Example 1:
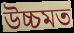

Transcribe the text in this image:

উচ্চমত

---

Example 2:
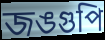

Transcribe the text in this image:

জঙগুপি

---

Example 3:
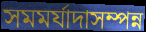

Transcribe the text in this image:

সমমর্যাদাসম্পন্ন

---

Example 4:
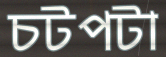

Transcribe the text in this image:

চটপটা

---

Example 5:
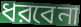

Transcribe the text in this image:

ধরবেনা